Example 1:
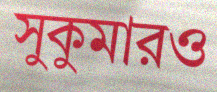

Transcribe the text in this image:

সুকুমারও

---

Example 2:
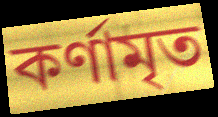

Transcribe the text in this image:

কর্ণামৃত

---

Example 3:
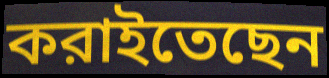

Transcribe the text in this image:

করাইতেছেন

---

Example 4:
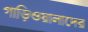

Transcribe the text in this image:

গাড়িওয়ালাদের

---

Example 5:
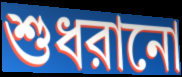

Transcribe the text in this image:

শুধরানো